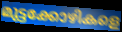
മുട്ടക്കോഴികളെ